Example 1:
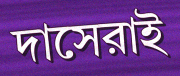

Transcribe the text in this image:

দাসেরাই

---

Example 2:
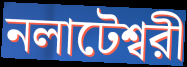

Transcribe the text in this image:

নলাটেশ্বরী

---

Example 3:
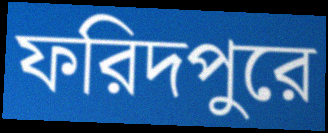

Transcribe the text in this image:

ফরিদপুরে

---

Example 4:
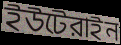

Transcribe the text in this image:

ইউটেরাইন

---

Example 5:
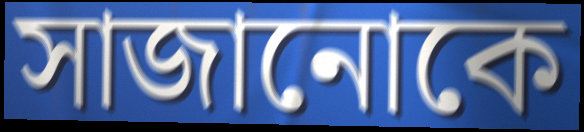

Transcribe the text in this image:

সাজানোকে